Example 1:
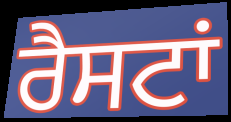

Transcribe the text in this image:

ਰੈਸਟਾਂ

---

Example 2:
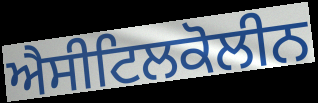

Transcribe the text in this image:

ਐਸੀਟਿਲਕੋਲੀਨ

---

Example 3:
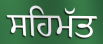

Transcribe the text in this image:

ਸਹਿਮੱਤ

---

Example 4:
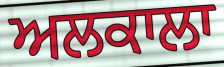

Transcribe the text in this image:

ਅਲਕਾਲਾ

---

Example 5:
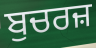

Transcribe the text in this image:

ਬੁਚਰਜ਼